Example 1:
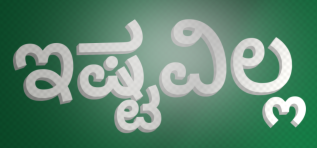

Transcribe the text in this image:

ಇಷ್ಟವಿಲ್ಲ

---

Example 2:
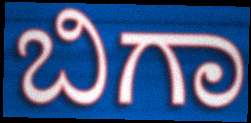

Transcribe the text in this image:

ಬಿಗಾ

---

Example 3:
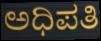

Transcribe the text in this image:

ಅಧಿಪತಿ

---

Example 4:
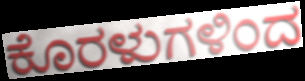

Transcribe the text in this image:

ಕೊರಳುಗಳಿಂದ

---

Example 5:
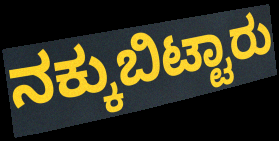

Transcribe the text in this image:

ನಕ್ಕುಬಿಟ್ಟಾರು